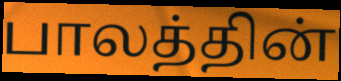
பாலத்தின்